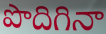
పొదిగినా